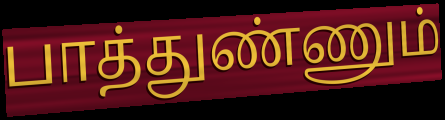
பாத்துண்ணும்